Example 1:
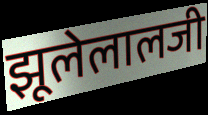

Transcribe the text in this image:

झूलेलालजी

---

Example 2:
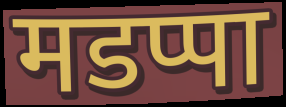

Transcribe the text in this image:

मडप्पा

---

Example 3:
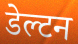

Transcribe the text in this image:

डेल्टन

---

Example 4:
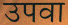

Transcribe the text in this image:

उपवा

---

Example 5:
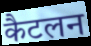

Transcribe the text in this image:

कैटलन